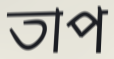
তাপ